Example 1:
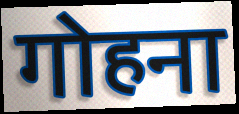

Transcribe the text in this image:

गोहना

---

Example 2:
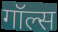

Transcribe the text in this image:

गॉल्स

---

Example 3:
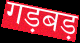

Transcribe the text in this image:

गड़बड़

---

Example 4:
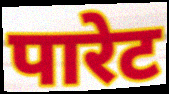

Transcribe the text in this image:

पारेट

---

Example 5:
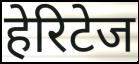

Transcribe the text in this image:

हेरिटेज